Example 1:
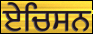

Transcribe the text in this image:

ਏਚਿਸਨ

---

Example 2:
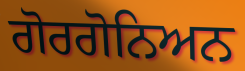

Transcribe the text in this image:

ਗੋਰਗੋਨਿਅਨ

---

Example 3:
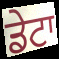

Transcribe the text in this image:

ਡੇਟਾ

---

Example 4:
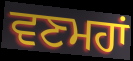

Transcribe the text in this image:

ਵਣਮਹਾਂ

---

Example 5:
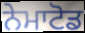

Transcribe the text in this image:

ਨੇਮਾਟੋਡ